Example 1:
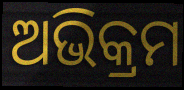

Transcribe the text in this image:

ଅଭିକ୍ରମ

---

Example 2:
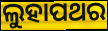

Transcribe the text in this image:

ଲୁହାପଥର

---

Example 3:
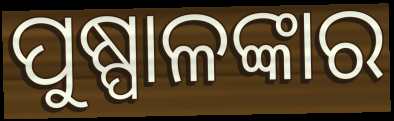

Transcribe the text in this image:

ପୁଷ୍ପାଳଙ୍କାର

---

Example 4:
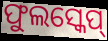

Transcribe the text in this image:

ଫୁଲସ୍କେପ୍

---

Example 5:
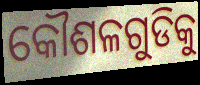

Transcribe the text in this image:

କୌଶଳଗୁଡିକୁ